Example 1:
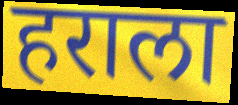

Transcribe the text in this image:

हराला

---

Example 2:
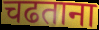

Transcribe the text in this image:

चढताना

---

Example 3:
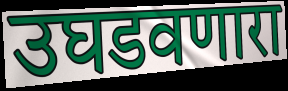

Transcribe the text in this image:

उघडवणारा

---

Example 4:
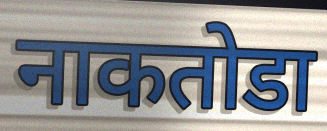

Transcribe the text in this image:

नाकतोडा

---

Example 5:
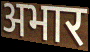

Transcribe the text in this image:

अभार